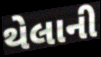
થેલાની